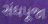
સંઘપૂજા